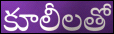
కూలీలతో